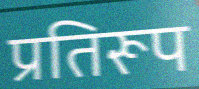
प्रतिरूप